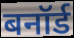
बनॉर्ड